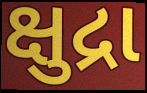
ક્ષુદ્રા